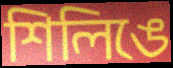
শিলিঙে